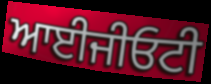
ਆਈਜੀਓਟੀ